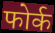
फोर्क